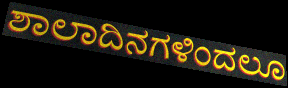
ಶಾಲಾದಿನಗಳಿಂದಲೂ